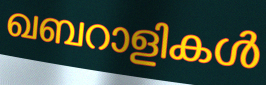
ഖബറാളികൾ